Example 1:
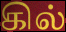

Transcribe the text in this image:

கில்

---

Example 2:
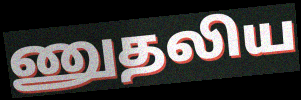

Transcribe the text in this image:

ணுதலிய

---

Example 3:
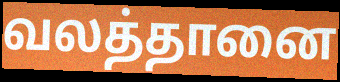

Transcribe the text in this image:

வலத்தானை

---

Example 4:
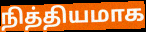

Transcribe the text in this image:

நித்தியமாக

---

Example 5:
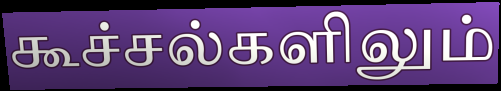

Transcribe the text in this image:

கூச்சல்களிலும்